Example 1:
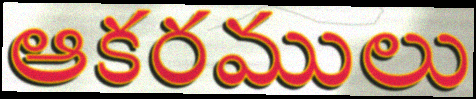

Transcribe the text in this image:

ఆకరములు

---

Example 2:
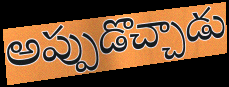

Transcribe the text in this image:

అప్పుడొచ్చాడు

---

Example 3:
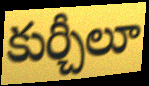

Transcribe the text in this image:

కుర్చీలూ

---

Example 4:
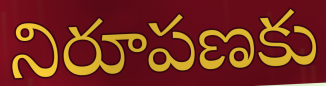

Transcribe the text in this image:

నిరూపణకు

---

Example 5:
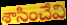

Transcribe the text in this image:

శాసించేవి